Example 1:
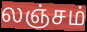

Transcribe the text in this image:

லஞ்சம்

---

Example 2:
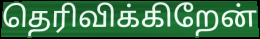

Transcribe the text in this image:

தெரிவிக்கிறேன்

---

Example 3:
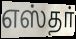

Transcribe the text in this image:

எஸ்தர்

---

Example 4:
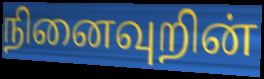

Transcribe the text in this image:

நினைவுறின்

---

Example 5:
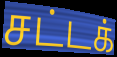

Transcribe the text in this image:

சட்டக்